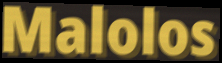
Malolos